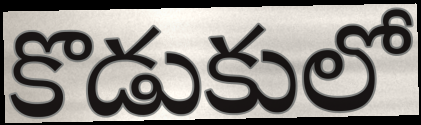
కొడుకులో